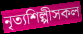
নৃত্যশিল্পীসকল